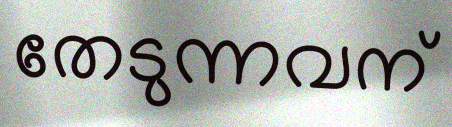
തേടുന്നവന്